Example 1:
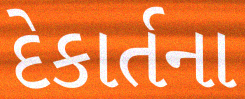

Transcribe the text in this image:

દેકાર્તના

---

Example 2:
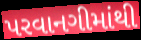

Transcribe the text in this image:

પરવાનગીમાંથી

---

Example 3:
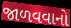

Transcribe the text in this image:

જાળવવાનો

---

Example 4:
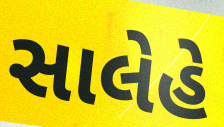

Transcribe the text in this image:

સાલેહે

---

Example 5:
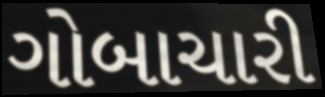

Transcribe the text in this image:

ગોબાચારી